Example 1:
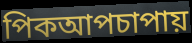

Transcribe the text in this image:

পিকআপচাপায়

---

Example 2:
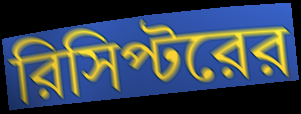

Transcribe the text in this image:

রিসিপ্টরের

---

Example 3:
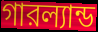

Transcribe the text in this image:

গারল্যান্ড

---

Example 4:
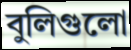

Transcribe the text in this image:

বুলিগুলো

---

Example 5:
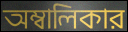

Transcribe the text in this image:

অম্বালিকার